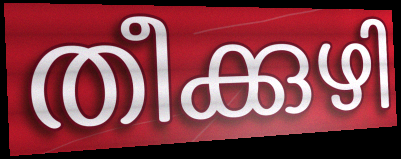
തീക്കുഴി